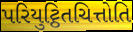
પરિયુટ્ઠિતચિત્તોતિ